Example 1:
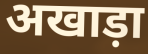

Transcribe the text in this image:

अखाड़ा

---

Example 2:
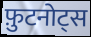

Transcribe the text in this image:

फ़ुटनोट्स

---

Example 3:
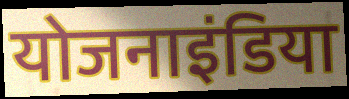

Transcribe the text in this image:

योजनाइंडिया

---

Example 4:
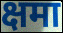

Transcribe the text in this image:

क्षमा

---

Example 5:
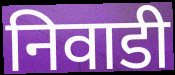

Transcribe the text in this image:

निवाडी